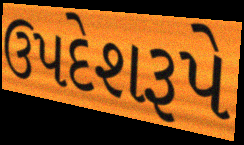
ઉપદેશરૂપે